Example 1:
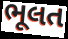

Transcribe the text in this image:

ભૂલત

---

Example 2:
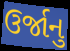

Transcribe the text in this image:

ઉર્જાનુ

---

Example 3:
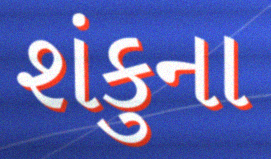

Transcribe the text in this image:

શંકુના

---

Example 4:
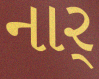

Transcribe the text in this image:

નાર્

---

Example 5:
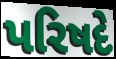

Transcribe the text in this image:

પરિષદે